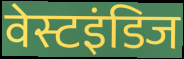
वेस्टइंडिज